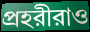
প্রহরীরাও